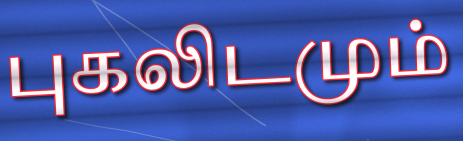
புகலிடமும்